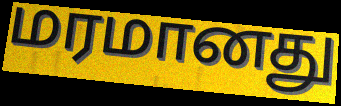
மரமானது